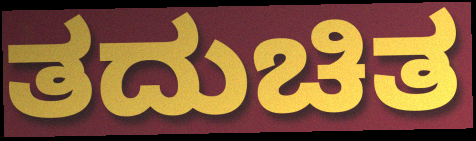
ತದುಚಿತ